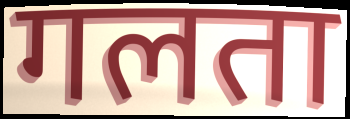
गलता